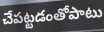
చేపట్టడంతోపాటు